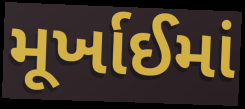
મૂર્ખાઈમાં